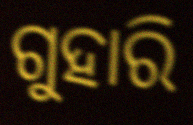
ଗୁହାରି